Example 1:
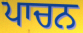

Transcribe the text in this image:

ਪਾਚਨ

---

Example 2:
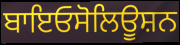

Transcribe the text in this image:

ਬਾਇਓਸੋਲਿਊਸ਼ਨ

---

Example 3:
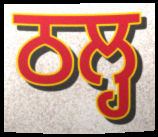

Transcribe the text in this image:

ਠਲ੍ਹ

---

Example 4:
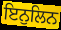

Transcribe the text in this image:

ਇਨੁਲਿਨ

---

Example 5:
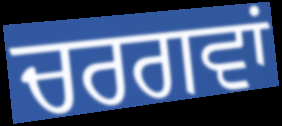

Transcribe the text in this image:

ਚਰਗਵਾਂ